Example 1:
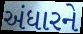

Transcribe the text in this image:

અંધારને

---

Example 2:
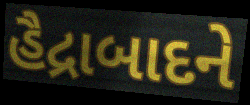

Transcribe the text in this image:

હૈદ્રાબાદને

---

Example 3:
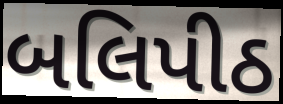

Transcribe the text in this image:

બલિપીઠ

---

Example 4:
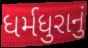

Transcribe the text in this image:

ધર્મધુરાનું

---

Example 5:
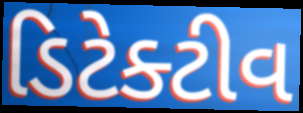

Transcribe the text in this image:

ડિટેક્ટીવ